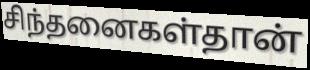
சிந்தனைகள்தான்